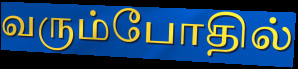
வரும்போதில்